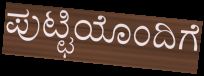
ಪುಟ್ಟಿಯೊಂದಿಗೆ